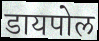
डायपोल